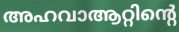
അഹവാആറ്റിന്റെ